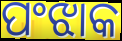
ପଂଝାକ